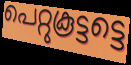
പെറ്റുകൂട്ടട്ടെ